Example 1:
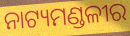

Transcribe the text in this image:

ନାଟ୍ୟମଣ୍ଡଳୀର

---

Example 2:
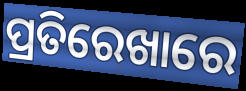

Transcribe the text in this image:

ପ୍ରତିରେଖାରେ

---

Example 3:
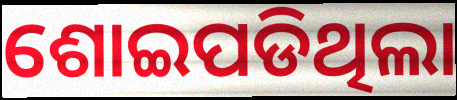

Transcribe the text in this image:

ଶୋଇପଡିଥିଲା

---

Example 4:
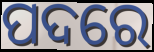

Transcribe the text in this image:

ପଦରେ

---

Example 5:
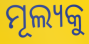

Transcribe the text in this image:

ମୂଲ୍ୟକୁ